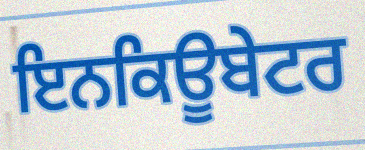
ਇਨਕਿਊਬੇਟਰ